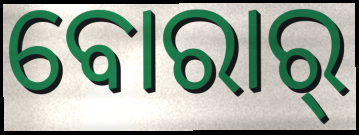
ବୋରାର୍